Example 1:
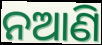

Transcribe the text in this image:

ନଆଣି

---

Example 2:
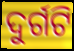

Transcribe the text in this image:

ଦୁର୍ଗଟି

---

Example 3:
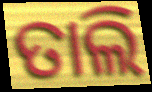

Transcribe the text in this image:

ତାଲି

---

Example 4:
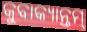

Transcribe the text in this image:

କୁବାକ୍ୟାନ୍ତମ୍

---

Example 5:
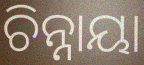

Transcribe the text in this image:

ଚିନ୍ନାୟା